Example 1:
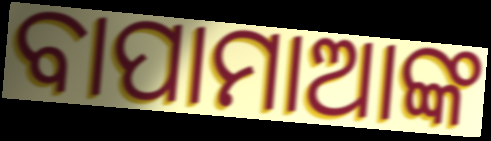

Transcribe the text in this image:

ବାପାମାଆଙ୍କ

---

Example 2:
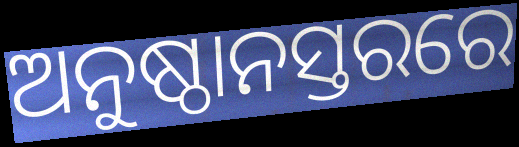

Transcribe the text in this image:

ଅନୁଷ୍ଠାନସ୍ତରରେ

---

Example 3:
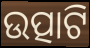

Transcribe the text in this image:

ଉତ୍ପାଟି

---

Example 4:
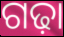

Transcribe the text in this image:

ଗଢ଼ା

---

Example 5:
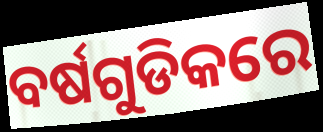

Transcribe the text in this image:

ବର୍ଷଗୁଡିକରେ